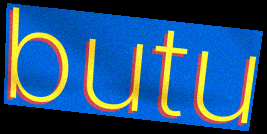
butu